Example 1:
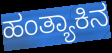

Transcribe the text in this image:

ಹಂತ್ಯಾಕಿನ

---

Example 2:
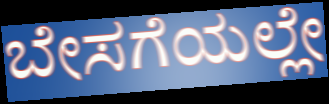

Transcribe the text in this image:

ಬೇಸಗೆಯಲ್ಲೇ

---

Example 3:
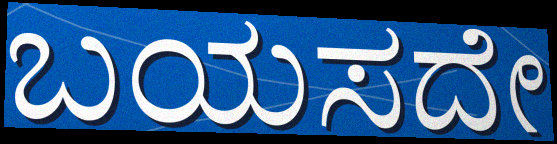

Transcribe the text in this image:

ಬಯಸದೇ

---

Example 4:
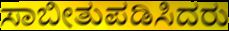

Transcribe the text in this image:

ಸಾಬೀತುಪಡಿಸಿದರು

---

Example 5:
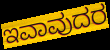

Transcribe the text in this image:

ಇವಾವುದರ